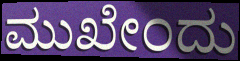
ಮುಖೇಂದು